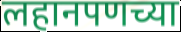
लहानपणच्या